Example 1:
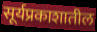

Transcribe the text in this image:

सूर्यप्रकाशातील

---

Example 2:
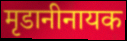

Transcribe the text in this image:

मृडानीनायक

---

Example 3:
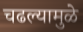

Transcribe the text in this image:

चढल्यामुळे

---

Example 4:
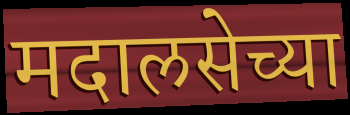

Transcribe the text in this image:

मदालसेच्या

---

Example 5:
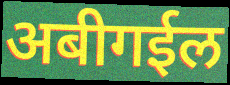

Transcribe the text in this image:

अबीगईल